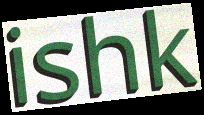
ishk